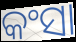
କଂସା